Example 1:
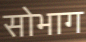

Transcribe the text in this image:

सोभाग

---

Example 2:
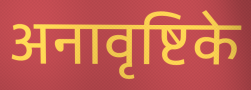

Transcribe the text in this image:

अनावृष्टिके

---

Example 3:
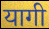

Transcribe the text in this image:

यागी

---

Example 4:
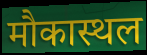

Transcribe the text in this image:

मौकास्थल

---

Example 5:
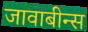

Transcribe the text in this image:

जावाबीन्स